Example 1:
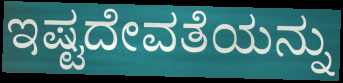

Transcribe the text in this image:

ಇಷ್ಟದೇವತೆಯನ್ನು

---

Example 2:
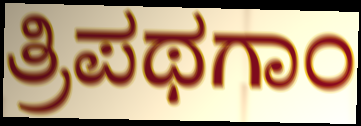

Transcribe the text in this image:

ತ್ರಿಪಥಗಾಂ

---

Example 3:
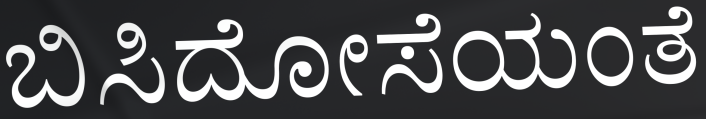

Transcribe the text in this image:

ಬಿಸಿದೋಸೆಯಂತೆ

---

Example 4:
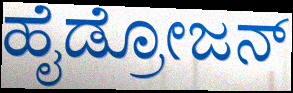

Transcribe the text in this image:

ಹೈಡ್ರೋಜನ್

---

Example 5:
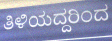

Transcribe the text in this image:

ತಿಳಿಯದ್ದರಿಂದ